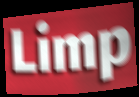
Limp